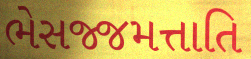
ભેસજ્જમત્તાતિ